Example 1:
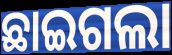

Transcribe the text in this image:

ଛାଇଗଲା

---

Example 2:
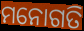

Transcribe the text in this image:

ମନୋଗତି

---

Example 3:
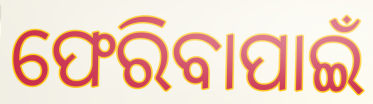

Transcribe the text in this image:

ଫେରିବାପାଇଁ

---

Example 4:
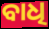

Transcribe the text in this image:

ବାଧି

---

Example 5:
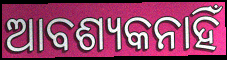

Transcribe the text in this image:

ଆବଶ୍ୟକନାହିଁ